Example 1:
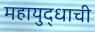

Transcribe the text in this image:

महायुद्धाची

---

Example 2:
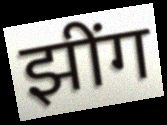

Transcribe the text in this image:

झींग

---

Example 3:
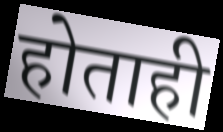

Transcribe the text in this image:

होताही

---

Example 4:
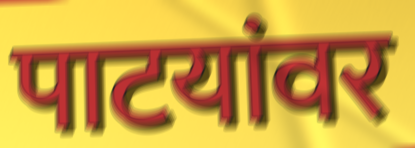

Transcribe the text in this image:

पाटयांवर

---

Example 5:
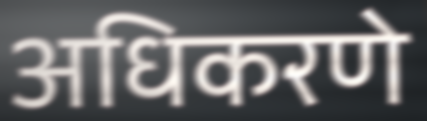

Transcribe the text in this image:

अधिकरणे